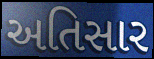
અતિસાર